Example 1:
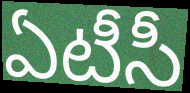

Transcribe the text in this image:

ఏటీసీ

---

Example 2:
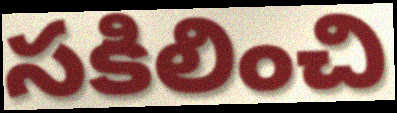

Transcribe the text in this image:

సకిలించి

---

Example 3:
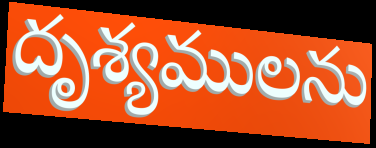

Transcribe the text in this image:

దృశ్యములను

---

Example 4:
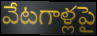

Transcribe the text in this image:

వేటగాళ్లపై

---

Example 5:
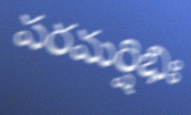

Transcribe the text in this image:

పరమర్షిభిః